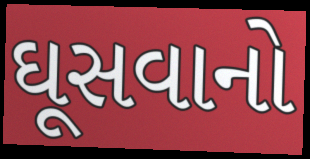
ઘૂસવાનો